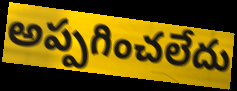
అప్పగించలేదు